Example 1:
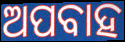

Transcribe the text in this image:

ଅପବାହ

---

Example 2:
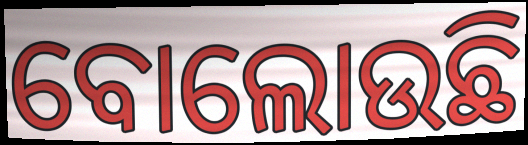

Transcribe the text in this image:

ବୋଲୋଉଛି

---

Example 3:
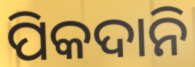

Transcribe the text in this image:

ପିକଦାନି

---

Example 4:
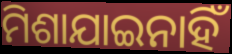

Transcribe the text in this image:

ମିଶାଯାଇନାହିଁ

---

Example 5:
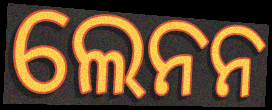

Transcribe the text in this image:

ଲେନନ